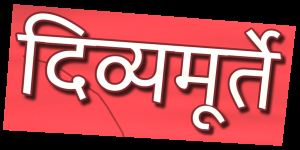
दिव्यमूर्ते